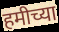
हमीच्या